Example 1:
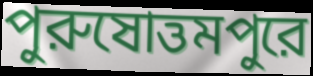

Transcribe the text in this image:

পুরুষোত্তমপুরে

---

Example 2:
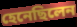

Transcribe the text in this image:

হেনেছিলেন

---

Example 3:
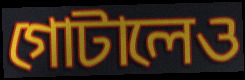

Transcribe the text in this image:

গোটালেও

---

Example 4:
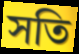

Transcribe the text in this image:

সতি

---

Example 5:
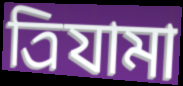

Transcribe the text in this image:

ত্রিযামা